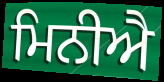
ਮਿਨੀਐ